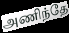
அணிந்தே